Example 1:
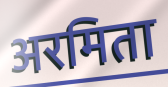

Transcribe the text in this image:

अरमिता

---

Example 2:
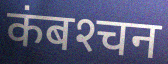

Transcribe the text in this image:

कंबश्चन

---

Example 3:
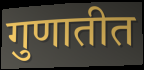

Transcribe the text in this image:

गुणातीत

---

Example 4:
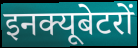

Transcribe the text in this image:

इनक्यूबेटरों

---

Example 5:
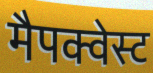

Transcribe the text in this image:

मैपक्वेस्ट